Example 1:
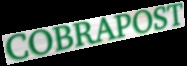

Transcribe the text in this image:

COBRAPOST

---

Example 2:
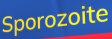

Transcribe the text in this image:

Sporozoite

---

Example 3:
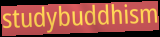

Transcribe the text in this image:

studybuddhism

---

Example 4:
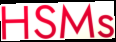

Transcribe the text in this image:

HSMs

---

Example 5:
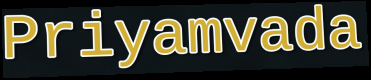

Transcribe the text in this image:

Priyamvada